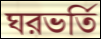
ঘরভর্তি